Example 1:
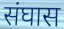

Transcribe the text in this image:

संघास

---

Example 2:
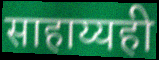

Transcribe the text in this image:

साहाय्यही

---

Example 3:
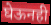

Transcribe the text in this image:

घेऊनही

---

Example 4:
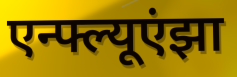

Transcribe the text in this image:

एन्फ्ल्यूएंझा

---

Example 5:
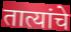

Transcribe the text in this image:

तात्यांचे